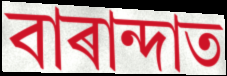
বাৰান্দাত